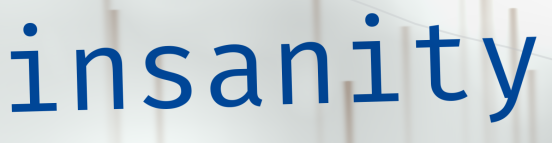
insanity